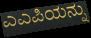
ಎಎಪಿಯನ್ನು